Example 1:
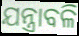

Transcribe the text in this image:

ଯନ୍ତ୍ରାବଳି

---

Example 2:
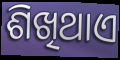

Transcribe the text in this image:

ଶିଖିଥାଏ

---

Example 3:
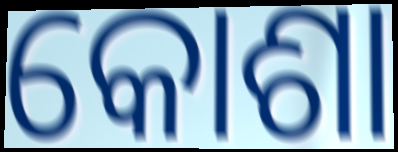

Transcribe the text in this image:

କୋଶା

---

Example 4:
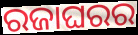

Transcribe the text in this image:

ରଜାଘରର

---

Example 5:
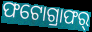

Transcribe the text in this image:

ଫଟୋଗ୍ରାଫର୍